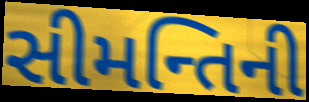
સીમન્તિની